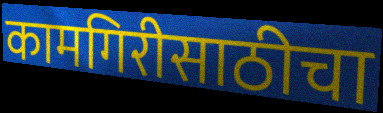
कामगिरीसाठीचा